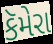
કૅમેરા